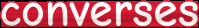
converses